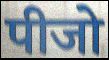
पीजो